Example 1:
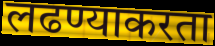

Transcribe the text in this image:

लढण्याकरता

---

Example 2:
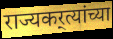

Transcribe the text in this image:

राज्यकर्त्यांच्या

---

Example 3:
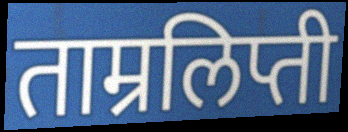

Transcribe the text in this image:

ताम्रलिप्ती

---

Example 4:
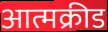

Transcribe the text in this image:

आत्मक्रीड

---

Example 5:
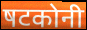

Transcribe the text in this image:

षटकोनी